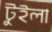
টুইলা